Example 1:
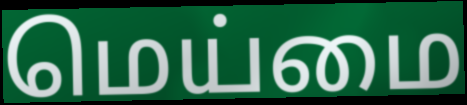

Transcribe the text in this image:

மெய்மை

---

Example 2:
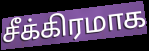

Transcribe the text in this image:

சீக்கிரமாக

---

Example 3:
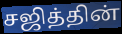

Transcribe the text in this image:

சஜித்தின்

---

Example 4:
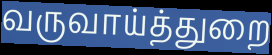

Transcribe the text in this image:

வருவாய்த்துறை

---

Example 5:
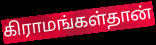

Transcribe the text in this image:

கிராமங்கள்தான்